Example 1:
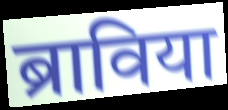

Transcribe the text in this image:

ब्राविया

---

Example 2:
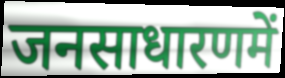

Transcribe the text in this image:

जनसाधारणमें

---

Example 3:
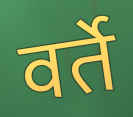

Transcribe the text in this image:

वर्ते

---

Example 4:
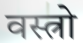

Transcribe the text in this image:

वस्त्रो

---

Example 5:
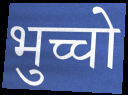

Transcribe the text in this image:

भुच्चो